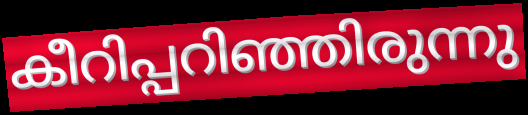
കീറിപ്പറിഞ്ഞിരുന്നു